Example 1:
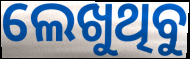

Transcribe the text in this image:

ଲେଖୁଥିବୁ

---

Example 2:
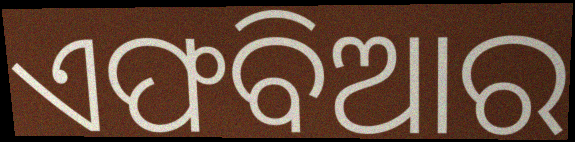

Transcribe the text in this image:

ଏଫବିଆର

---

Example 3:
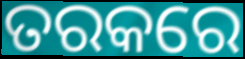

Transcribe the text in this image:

ତରକରେ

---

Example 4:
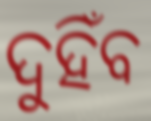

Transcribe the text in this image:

ଦୁହିଁବ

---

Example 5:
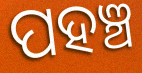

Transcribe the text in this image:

ପହଞ୍ଚ